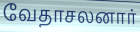
வேதாசலனார்